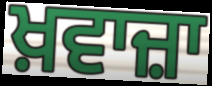
ਖ਼ਵਾਜ਼ਾ